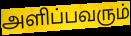
அளிப்பவரும்